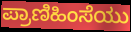
ಪ್ರಾಣಿಹಿಂಸೆಯು